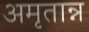
अमृतान्न